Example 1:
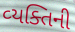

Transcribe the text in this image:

વ્‍યક્તિની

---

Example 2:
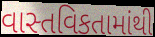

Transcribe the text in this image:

વાસ્તવિકતામાંથી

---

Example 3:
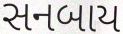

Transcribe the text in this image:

સનબાય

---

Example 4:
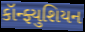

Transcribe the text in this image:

કૉન્ફ્યુશિયન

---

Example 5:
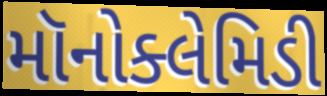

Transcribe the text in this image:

મૉનોક્લેમિડી